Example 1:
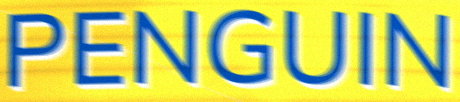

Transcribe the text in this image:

PENGUIN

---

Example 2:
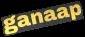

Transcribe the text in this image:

ganaap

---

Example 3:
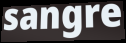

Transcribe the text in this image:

sangre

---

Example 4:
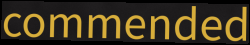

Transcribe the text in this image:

commended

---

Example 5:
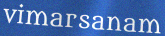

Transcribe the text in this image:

vimarsanam